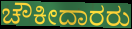
ಚೌಕೀದಾರರು